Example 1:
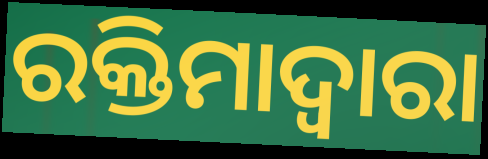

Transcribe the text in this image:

ରକ୍ତିମାଦ୍ୱାରା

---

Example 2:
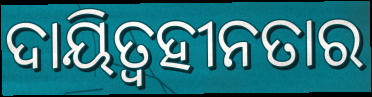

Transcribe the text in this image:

ଦାୟିତ୍ଵହୀନତାର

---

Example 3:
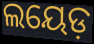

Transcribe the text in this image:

ଲୟେଡ଼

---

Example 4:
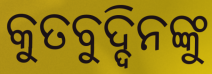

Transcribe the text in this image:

କୁତବୁଦ୍ଦିନଙ୍କୁ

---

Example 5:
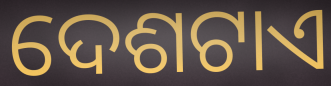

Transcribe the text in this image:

ଦେଶଟାଏ